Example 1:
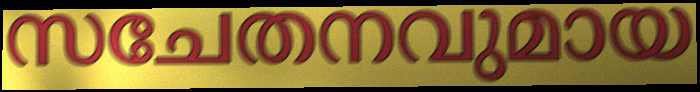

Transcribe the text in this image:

സചേതനവുമായ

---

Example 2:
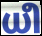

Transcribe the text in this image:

ധീ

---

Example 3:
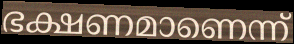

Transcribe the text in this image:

ഭക്ഷണമാണെന്ന്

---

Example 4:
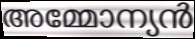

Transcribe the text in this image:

അമ്മോന്യൻ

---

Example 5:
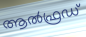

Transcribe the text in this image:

ആൽഫ്രഡ്